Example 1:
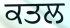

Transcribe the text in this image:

ਕਤਲ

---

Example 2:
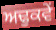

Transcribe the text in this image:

ਅਢੁਕਵੇਂ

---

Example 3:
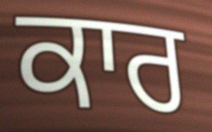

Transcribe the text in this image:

ਕਾਰ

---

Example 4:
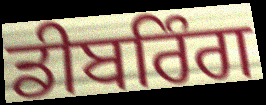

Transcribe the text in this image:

ਡੀਬਰਿੰਗ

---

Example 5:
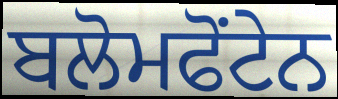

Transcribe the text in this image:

ਬਲੋਮਫੋਂਟੇਨ